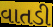
વાતડી